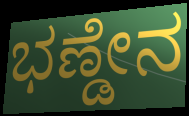
ಭಣ್ಡೇನ